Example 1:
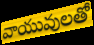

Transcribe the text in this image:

వాయువులతో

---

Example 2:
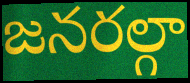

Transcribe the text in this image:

జనరల్గా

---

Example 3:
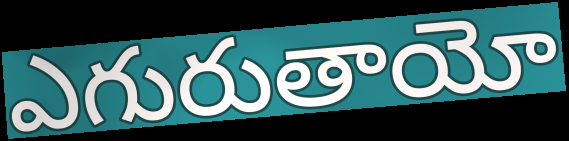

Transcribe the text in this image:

ఎగురుతాయో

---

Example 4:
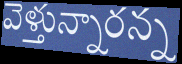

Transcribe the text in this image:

వెళ్తున్నారన్న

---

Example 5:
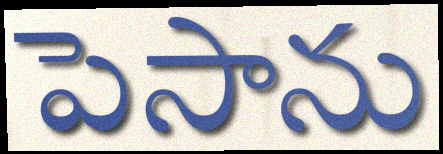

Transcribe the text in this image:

పెసాను